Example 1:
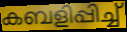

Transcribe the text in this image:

കബളിപ്പിച്ച്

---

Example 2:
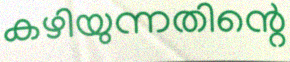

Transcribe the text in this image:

കഴിയുന്നതിന്റെ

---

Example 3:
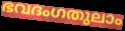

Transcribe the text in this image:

ഭവദംഗതുലാം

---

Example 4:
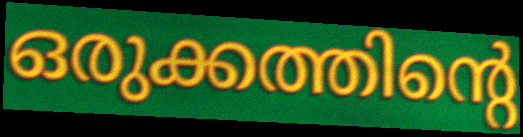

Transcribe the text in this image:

ഒരുക്കത്തിന്റെ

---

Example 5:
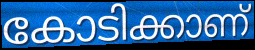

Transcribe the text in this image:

കോടിക്കാണ്